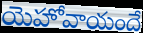
యెహోవాయందే